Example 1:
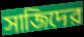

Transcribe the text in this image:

সাজিদের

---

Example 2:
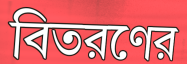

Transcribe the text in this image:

বিতরণের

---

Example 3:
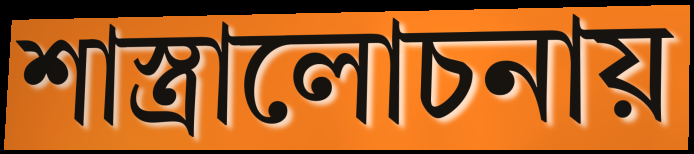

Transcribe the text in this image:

শাস্ত্রালোচনায়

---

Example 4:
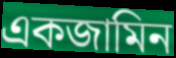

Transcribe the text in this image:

একজামিন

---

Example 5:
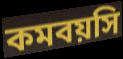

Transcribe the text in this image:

কমবয়সি